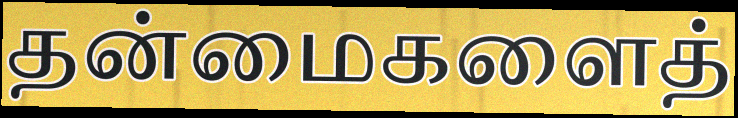
தன்மைகளைத்